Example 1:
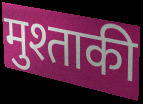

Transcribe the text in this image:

मुश्ताकी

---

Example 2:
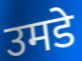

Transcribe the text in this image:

उमडे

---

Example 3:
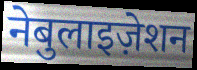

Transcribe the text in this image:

नेबुलाइज़ेशन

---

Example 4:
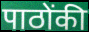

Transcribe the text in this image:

पाठोंकी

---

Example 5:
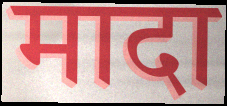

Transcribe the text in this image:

मादा